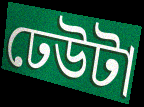
ঢেউটা